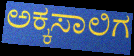
ಅಕ್ಕಸಾಲಿಗ